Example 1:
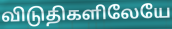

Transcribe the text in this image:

விடுதிகளிலேயே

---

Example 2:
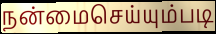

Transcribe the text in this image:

நன்மைசெய்யும்படி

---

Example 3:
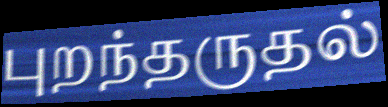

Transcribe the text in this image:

புறந்தருதல்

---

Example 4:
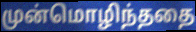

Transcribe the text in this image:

முன்மொழிந்ததை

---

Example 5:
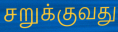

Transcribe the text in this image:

சறுக்குவது